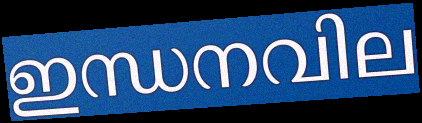
ഇന്ധനവില